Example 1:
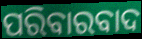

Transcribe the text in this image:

ପରିବାରବାଦ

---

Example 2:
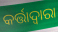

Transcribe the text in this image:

କର୍ତ୍ତାଦ୍ଵାରା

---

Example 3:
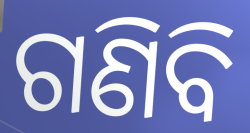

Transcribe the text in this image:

ଗଣିବି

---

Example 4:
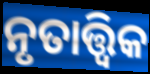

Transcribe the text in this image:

ନୃତାତ୍ତ୍ବିକ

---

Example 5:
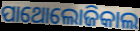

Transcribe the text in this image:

ପାଥୋଲୋଜିକାଲ